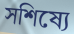
সশিষ্যে